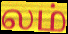
லம்